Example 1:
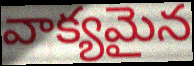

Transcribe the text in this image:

వాక్యమైన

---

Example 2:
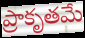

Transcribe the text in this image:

ప్రాకృతమే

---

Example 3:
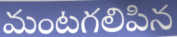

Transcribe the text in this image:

మంటగలిపిన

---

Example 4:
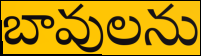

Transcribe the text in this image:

బావులను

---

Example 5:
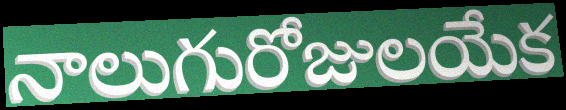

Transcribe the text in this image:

నాలుగురోజులయేక